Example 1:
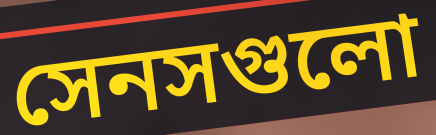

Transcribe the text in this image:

সেনসগুলো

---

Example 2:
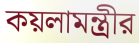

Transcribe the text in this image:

কয়লামন্ত্রীর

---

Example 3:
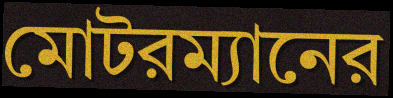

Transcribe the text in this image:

মোটরম্যানের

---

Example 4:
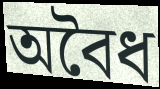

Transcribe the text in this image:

অবৈধ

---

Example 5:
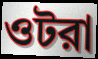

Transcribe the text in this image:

ওটরা